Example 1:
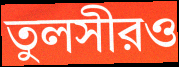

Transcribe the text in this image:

তুলসীরও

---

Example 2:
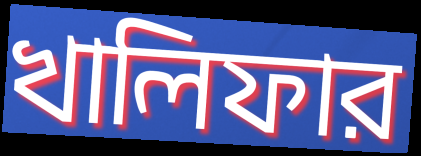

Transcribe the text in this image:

খালিফার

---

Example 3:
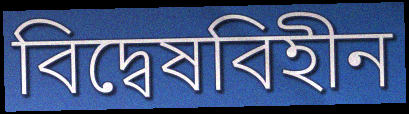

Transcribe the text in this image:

বিদ্বেষবিহীন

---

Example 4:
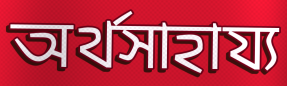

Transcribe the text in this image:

অর্থসাহায্য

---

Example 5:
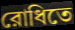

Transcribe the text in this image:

রোধিতে